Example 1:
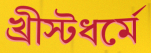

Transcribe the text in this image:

খ্রীস্টধর্মে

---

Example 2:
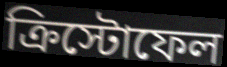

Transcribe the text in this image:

ক্রিস্টোফেল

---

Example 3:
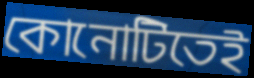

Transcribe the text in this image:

কোনোটিতেই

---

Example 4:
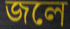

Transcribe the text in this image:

জলে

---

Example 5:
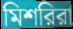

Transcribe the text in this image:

মিশরিরা